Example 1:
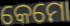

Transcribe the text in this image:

କେମୋ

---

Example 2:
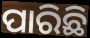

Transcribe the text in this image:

ପାରିଛି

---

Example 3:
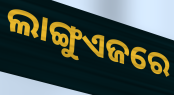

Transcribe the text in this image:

ଲାଙ୍ଗୁଏଜରେ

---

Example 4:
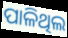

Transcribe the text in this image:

ପାଳିଥିଲ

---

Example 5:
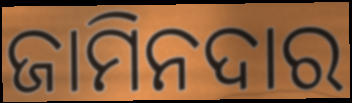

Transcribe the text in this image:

ଜାମିନଦାର